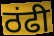
ठंढी